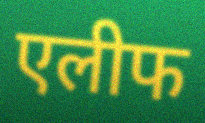
एलीफ